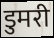
डुमरी